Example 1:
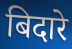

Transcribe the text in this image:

बिदारे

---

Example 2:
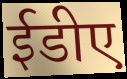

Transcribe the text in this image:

ईडीए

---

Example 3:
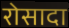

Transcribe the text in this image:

रोसादा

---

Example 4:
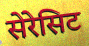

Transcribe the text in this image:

सेरेसिट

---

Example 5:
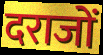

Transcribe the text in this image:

दराजों